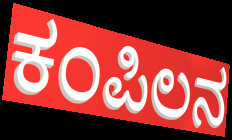
ಕಂಪಿಲನ